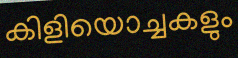
കിളിയൊച്ചകളും